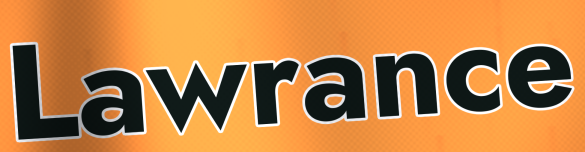
Lawrance